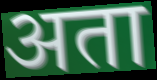
अता